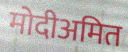
मोदीअमित